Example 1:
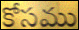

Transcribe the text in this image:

కోసము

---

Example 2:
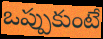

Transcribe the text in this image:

ఒప్పుకుంటే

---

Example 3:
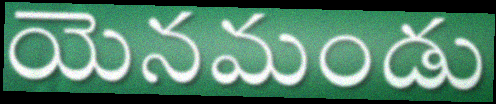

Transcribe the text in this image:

యెనమండు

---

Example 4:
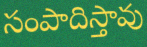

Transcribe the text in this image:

సంపాదిస్తావు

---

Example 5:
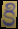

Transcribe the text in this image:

కి